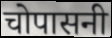
चोपासनी